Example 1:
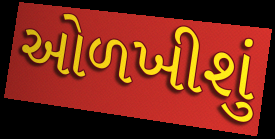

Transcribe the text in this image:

ઓળખીશું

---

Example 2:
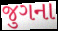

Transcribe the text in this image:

જુગના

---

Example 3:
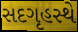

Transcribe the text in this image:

સદગૃહસ્થે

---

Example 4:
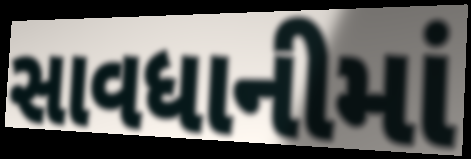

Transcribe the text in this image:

સાવધાનીમાં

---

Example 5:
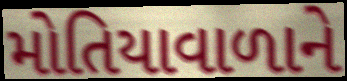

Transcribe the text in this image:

મોતિયાવાળાને